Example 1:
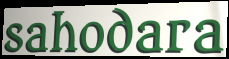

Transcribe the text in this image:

sahodara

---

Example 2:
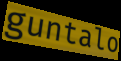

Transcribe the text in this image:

guntalo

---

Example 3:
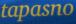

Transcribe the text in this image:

tapasno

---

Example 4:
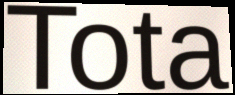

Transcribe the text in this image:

Tota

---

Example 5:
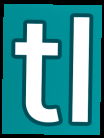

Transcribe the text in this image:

tl